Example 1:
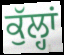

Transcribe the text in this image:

ਕੁੱਲ੍ਹਾਂ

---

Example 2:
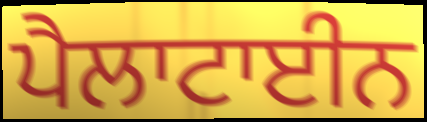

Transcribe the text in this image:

ਪੈਲਾਟਾਈਨ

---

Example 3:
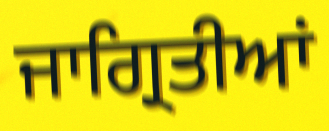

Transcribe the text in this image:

ਜਾਗ੍ਰਿਤੀਆਂ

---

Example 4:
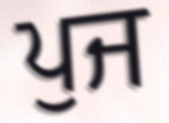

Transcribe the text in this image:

ਪੁਜ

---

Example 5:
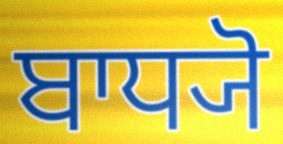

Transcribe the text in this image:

ਬਾਧ੍ਯੋ